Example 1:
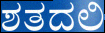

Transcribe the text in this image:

ಶತದಲಿ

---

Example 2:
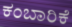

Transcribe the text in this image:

ಕಂಬಾರಿಕೆ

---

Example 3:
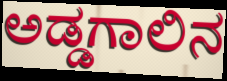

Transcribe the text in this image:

ಅಡ್ಡಗಾಲಿನ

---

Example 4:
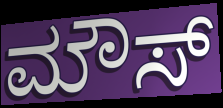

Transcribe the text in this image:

ಮೌಸ್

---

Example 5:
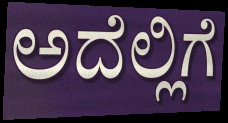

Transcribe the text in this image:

ಅದೆಲ್ಲಿಗೆ